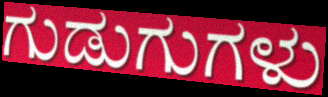
ಗುಡುಗುಗಳು